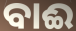
ବାଈ